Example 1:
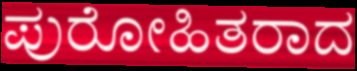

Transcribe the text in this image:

ಪುರೋಹಿತರಾದ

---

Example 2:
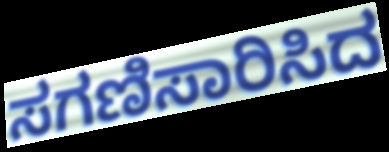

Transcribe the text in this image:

ಸಗಣಿಸಾರಿಸಿದ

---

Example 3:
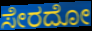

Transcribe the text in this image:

ಸೇರದೋ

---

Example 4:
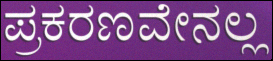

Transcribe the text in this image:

ಪ್ರಕರಣವೇನಲ್ಲ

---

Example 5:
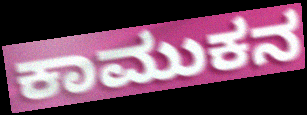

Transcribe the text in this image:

ಕಾಮುಕನ